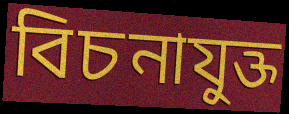
বিচনাযুক্ত